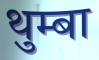
थुम्बा